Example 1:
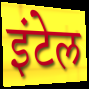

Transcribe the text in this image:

इंटेल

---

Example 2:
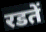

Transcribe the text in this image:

रडतें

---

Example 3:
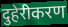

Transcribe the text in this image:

दुहेरीकरण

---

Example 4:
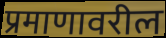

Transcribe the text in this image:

प्रमाणावरील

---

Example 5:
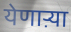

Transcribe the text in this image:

येणाऱ्‍या